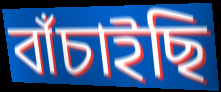
বাঁচাইছি